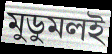
মুডুমলই